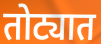
तोट्यात